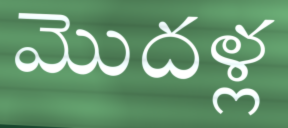
మొదళ్ల